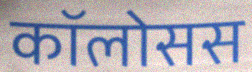
कॉलोसस